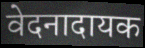
वेदनादायक